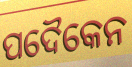
ପଦୈକେନ